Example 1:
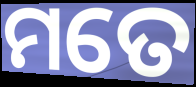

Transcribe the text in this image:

ମତେ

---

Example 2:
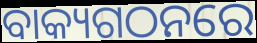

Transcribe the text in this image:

ବାକ୍ୟଗଠନରେ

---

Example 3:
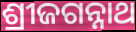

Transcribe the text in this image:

ଶ୍ରୀଜଗନ୍ନାଥ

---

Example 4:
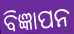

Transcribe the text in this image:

ବିଜ୍ଞାପନ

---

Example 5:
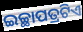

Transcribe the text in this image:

ଇଚ୍ଛାପତ୍ରଟିଏ